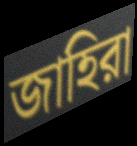
জাহিরা